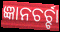
ଜ୍ଞାନଚର୍ଚ୍ଚା